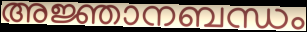
അജ്ഞാനബന്ധം